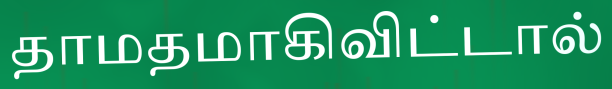
தாமதமாகிவிட்டால்